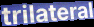
trilateral